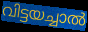
വിട്ടയച്ചാൽ